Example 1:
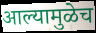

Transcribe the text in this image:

आल्यामुळेच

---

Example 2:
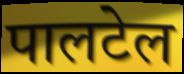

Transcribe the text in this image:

पालटेल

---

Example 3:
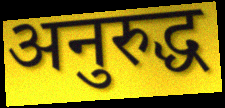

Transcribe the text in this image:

अनुरुद्ध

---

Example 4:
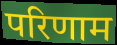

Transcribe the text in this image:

परिणाम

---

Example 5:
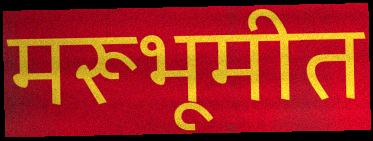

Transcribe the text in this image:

मरूभूमीत